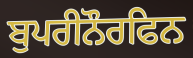
ਬੁਪਰੀਨੌਰਫਿਨ